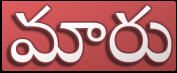
మారు